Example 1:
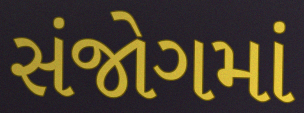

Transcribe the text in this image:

સંજોગમાં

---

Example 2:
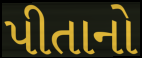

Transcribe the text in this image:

પીતાનો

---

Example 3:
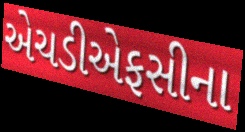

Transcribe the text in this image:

એચડીએફસીના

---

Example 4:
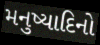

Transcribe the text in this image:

મનુષ્યાદિનો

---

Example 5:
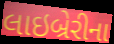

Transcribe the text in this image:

લાઇબ્રેરીના